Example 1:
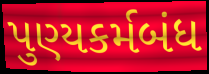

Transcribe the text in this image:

પુણ્યકર્મબંધ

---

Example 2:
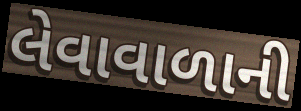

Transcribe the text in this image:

લેવાવાળાની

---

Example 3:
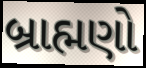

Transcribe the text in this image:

બ્રાહ્મણો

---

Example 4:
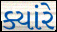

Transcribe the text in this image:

ક્યાંરે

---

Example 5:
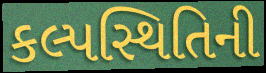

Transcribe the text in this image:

કલ્પસ્થિતિની